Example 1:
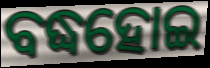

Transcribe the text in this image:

ବଦ୍ଧହୋଇ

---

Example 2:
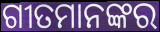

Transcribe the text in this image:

ଗୀତମାନଙ୍କର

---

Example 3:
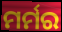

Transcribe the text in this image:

ମର୍ମର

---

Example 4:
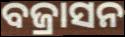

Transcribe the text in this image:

ବଜ୍ରାସନ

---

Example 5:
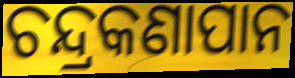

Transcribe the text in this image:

ଚନ୍ଦ୍ରକଣାପାନ